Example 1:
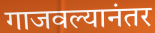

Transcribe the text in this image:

गाजवल्यानंतर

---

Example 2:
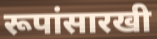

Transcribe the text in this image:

रूपांसारखी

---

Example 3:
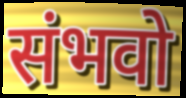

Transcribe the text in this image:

संभवो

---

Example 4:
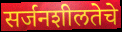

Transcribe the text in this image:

सर्जनशीलतेचे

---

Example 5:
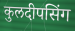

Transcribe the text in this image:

कुलदीपसिंग